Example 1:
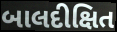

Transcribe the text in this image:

બાલદીક્ષિત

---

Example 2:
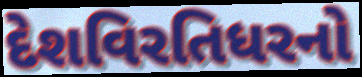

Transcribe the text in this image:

દેશવિરતિધરનો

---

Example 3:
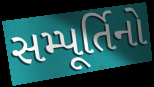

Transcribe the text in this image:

સમ્પૂર્તિનો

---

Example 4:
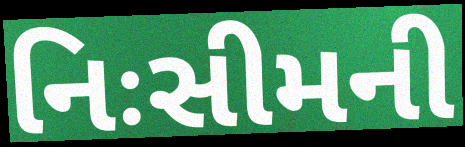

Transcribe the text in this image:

નિઃસીમની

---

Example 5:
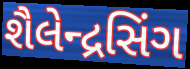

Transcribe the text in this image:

શૈલેન્દ્રસિંગ